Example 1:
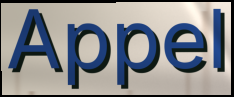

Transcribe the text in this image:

Appel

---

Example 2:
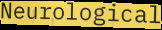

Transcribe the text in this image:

Neurological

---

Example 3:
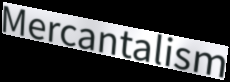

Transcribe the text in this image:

Mercantalism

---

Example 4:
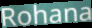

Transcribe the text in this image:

Rohana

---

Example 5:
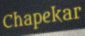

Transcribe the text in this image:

Chapekar